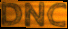
DNC